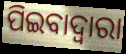
ପିଇବାଦ୍ଵାରା